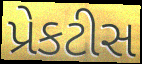
પ્રેકટીસ